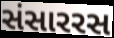
સંસારરસ